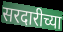
सरदारीच्या